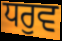
ਧਰੁਵ